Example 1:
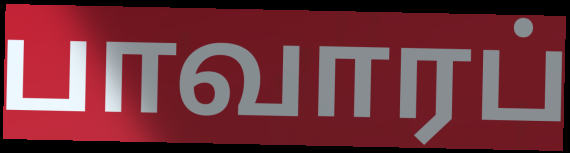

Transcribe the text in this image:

பாவாரப்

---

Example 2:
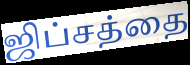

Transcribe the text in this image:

ஜிப்சத்தை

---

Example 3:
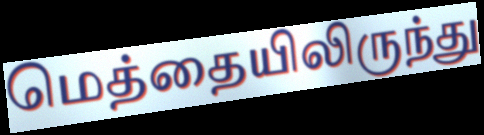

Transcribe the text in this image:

மெத்தையிலிருந்து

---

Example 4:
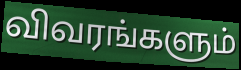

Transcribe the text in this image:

விவரங்களும்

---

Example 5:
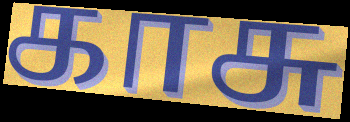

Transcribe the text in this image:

காசு